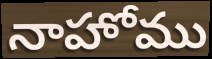
నాహోము